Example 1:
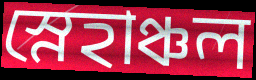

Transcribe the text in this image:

স্নেহাঞ্চল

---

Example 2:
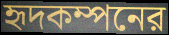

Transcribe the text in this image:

হৃদকম্পনের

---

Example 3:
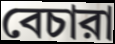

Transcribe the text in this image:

বেচারা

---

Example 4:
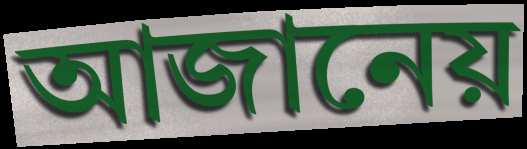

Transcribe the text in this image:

আজানেয়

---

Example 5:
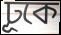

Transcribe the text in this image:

ঢূকে